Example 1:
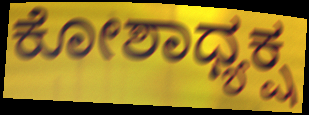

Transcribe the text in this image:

ಕೋಶಾಧ್ಯಕ್ಷ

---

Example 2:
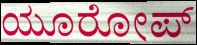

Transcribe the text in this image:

ಯೂರೋಪ್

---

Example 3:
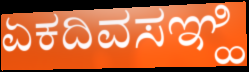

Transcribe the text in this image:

ಏಕದಿವಸಞ್ಹಿ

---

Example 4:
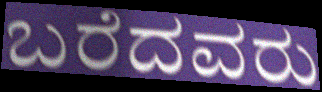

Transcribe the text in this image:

ಬರೆದವರು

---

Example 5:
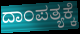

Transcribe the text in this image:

ದಾಂಪತ್ಯಕ್ಕೆ